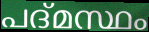
പദ്മസ്ഥം